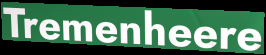
Tremenheere